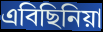
এবিছিনিয়া